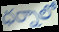
ధర్నాలో